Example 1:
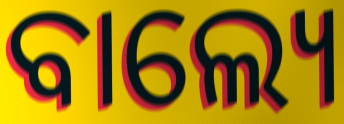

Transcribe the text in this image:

ବାଲ୍ୟେ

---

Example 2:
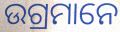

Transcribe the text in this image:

ଉଗ୍ରମାନେ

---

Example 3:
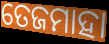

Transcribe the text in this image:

ତେଜମାହା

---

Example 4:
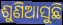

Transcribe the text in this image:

ଶୁଣିଆସୁଛି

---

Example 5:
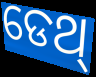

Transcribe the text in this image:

ଡେଥ୍